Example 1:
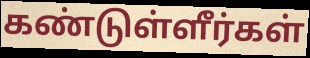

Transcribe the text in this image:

கண்டுள்ளீர்கள்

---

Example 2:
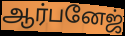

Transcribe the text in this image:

ஆர்பனேஜ்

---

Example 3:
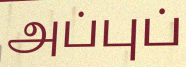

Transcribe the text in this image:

அப்புப்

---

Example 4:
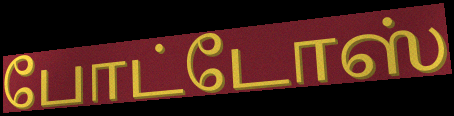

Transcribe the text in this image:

போட்டோஸ்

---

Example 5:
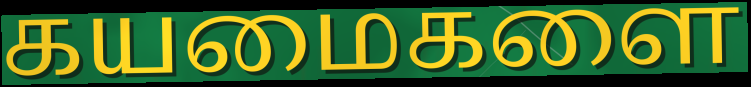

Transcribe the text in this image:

கயமைகளை